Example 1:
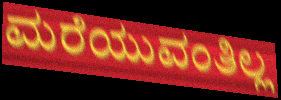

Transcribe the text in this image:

ಮರೆಯುವಂತಿಲ್ಲ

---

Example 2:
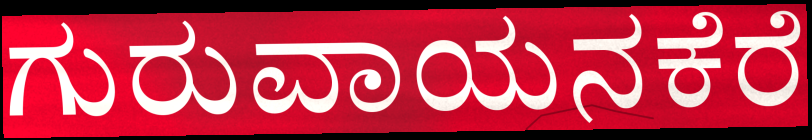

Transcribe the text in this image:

ಗುರುವಾಯನಕೆರೆ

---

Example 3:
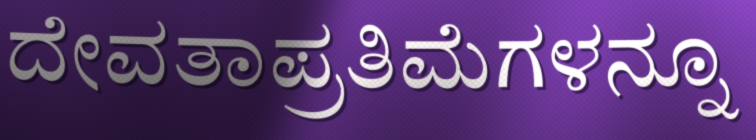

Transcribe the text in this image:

ದೇವತಾಪ್ರತಿಮೆಗಳನ್ನೂ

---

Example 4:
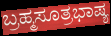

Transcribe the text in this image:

ಬ್ರಹ್ಮಸೂತ್ರಭಾಷ್ಯ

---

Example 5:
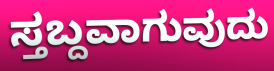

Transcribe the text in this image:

ಸ್ತಬ್ದವಾಗುವುದು